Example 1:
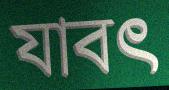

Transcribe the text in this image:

যাবৎ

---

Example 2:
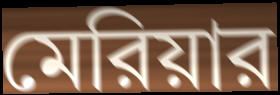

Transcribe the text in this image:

মেরিয়ার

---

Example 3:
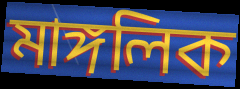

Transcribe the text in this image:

মাঙ্গলিক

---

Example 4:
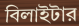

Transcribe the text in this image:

বিলাইটার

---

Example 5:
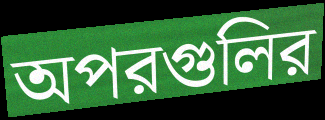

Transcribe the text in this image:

অপরগুলির